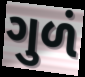
ગુળં